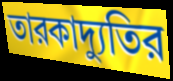
তারকাদ্যুতির